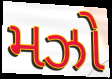
મઝો